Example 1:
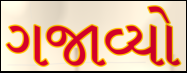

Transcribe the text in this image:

ગજાવ્યો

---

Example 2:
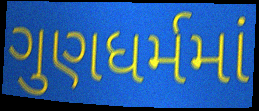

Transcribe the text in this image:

ગુણધર્મમાં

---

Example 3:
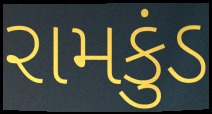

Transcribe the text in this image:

રામકુંડ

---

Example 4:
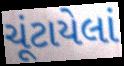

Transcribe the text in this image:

ચૂંટાયેલાં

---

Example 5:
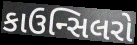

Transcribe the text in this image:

કાઉન્સિલરો